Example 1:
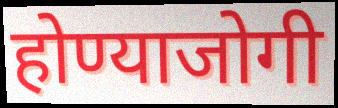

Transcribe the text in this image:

होण्याजोगी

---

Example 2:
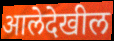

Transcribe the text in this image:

आलेदेखील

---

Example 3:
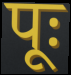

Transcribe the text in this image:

पूः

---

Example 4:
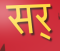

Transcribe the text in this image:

सर्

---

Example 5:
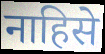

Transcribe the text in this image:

नाहिसे